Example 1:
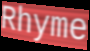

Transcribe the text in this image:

Rhyme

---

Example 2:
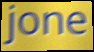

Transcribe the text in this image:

jone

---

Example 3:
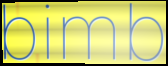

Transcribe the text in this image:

bimb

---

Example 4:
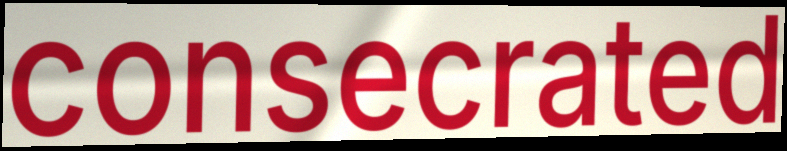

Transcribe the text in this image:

consecrated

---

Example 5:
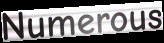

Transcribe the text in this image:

Numerous